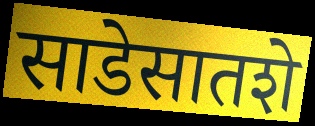
साडेसातशे